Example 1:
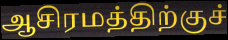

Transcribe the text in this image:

ஆசிரமத்திற்குச்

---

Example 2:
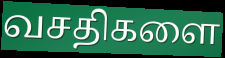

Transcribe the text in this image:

வசதிகளை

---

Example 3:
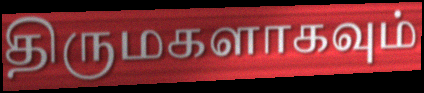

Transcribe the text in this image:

திருமகளாகவும்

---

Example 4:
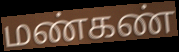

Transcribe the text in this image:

மண்கண்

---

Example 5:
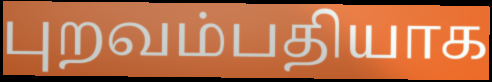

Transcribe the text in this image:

புறவம்பதியாக